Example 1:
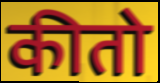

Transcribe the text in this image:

कीतो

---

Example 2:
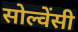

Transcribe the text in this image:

सोल्वेंसी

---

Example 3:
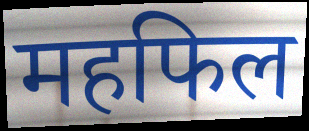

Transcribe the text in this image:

महफिल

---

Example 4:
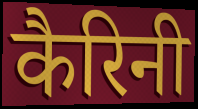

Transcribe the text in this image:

कैरिनी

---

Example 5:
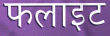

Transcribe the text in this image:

फलाइट